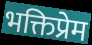
भक्तिप्रेम